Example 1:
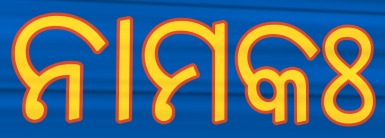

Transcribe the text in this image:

ନାମକଃ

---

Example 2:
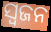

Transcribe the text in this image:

ସ୍ୱଜନ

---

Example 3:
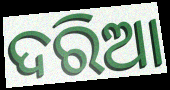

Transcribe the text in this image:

ଦରିଆ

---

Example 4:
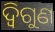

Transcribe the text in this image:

ଦ୍ୱିଗୁଣ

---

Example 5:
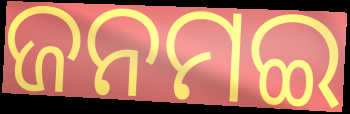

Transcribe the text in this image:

ଜନମଇ